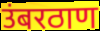
उंबरठाण